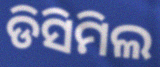
ଡିସିମିଲ